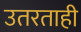
उतरताही